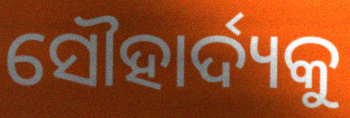
ସୌହାର୍ଦ୍ୟକୁ